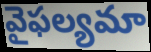
వైఫల్యమా